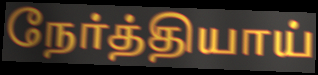
நேர்த்தியாய்